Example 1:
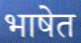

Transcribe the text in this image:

भाषेत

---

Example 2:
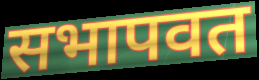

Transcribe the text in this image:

सभापवत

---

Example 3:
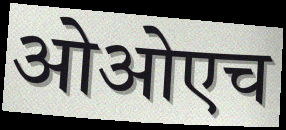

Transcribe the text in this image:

ओओएच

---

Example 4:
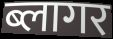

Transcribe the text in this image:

ब्लागर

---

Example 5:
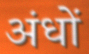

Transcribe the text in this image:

अंधों